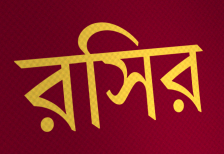
রসির